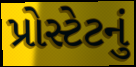
પ્રોસ્ટેટનું